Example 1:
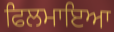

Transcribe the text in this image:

ਫਿਲਮਾਇਆ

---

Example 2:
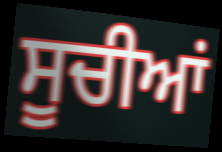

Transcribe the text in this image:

ਸੂਚੀਆਂ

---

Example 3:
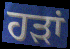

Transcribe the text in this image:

ਹੜਾਂ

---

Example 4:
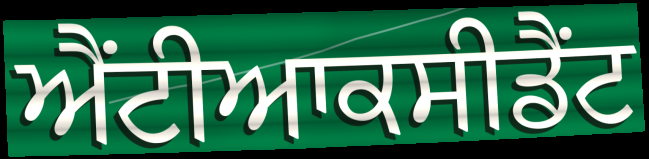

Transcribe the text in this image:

ਐਂਟੀਆਕਸੀਡੈਂਟ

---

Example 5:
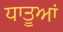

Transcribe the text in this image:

ਧਾਤੂਆਂ